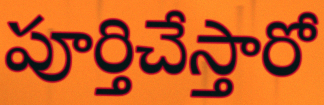
పూర్తిచేస్తారో